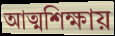
আত্মশিক্ষায়